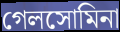
গেলসোমিনা